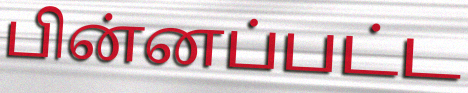
பின்னப்பட்ட